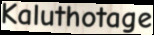
Kaluthotage